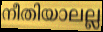
നീതിയാലല്ല